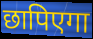
छापिएगा